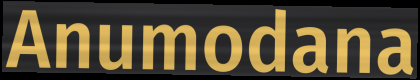
Anumodana